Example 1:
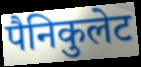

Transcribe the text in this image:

पैनिकुलेट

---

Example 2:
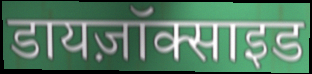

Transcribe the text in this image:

डायज़ॉक्साइड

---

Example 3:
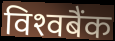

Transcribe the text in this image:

विश्वबैंक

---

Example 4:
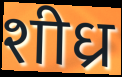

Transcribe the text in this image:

शीध्र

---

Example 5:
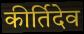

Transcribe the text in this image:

कीर्तिदेव